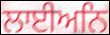
ਲਾਈਅਨਿ